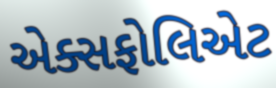
એક્સફોલિએટ